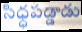
సిధ్ధపడ్డాడు